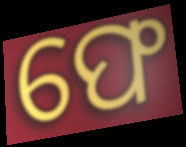
ଫେ